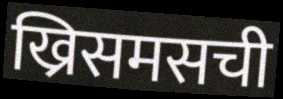
ख्रिसमसची